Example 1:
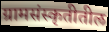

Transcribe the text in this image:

ग्रामसंस्कृतीतील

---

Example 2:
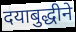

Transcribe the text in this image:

दयाबुद्धीने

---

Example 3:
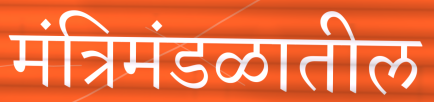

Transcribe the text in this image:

मंत्रिमंडळातील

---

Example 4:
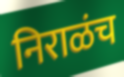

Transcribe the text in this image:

निराळंच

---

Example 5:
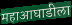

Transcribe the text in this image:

महाआघाडीला